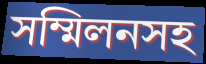
সম্মিলনসহ